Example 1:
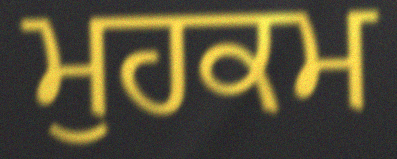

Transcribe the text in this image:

ਮੁਹਕਮ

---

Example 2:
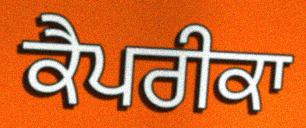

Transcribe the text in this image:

ਕੈਪਰੀਕਾ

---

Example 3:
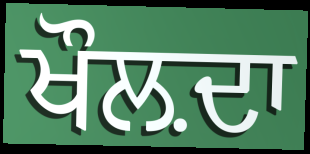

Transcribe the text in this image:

ਖੌਲ਼ਦਾ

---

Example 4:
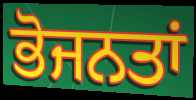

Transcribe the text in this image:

ਭੋਜਨਤਾਂ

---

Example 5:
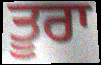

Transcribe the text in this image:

ਤੂਰਾ